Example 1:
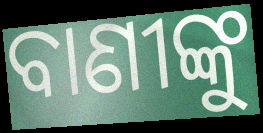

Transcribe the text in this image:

ବାଣୀଙ୍କୁ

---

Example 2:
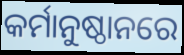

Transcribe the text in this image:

କର୍ମାନୁଷ୍ଠାନରେ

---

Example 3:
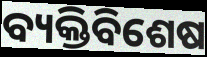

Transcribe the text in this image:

ବ୍ୟକ୍ତିବିଶେଷ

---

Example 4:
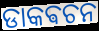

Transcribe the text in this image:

ଡାକଵଚନ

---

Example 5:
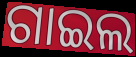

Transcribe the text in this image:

ଗାଇଲ